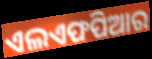
ଏଲଏଫପିଆର